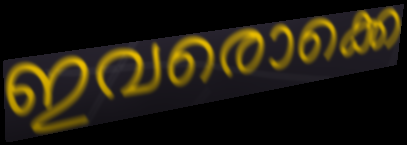
ഇവരൊക്കെ